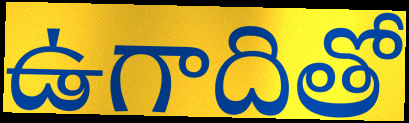
ఉగాదితో